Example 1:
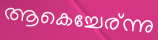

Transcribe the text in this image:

ആകെച്ചേര്ന്നു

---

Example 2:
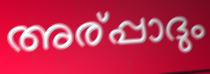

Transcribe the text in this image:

അര്പ്പാദും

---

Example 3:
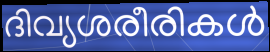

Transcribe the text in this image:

ദിവ്യശരീരികൾ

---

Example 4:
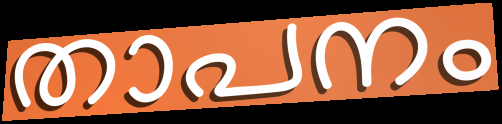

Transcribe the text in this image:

താപനം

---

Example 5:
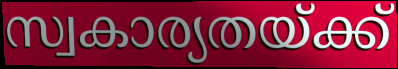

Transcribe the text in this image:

സ്വകാര്യതയ്ക്ക്